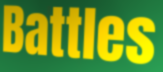
Battles